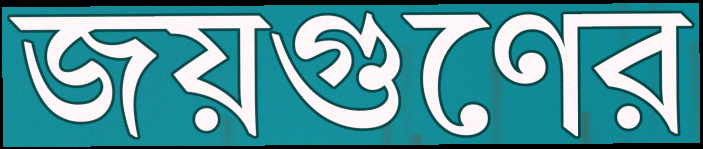
জয়গুণের